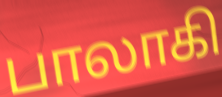
பாலாகி